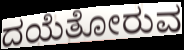
ದಯೆತೋರುವ